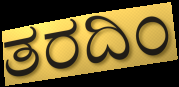
ತರದಿಂ